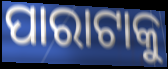
ପାରାଟାକୁ